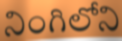
నింగిలోని